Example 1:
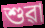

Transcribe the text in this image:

শুৱা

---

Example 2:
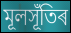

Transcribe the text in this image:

মূলসূঁতিৰ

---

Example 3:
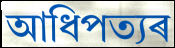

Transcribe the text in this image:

আধিপত্যৰ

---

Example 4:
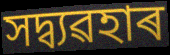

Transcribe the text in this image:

সদ্ব্যৱহাৰ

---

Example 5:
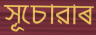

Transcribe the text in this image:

সূচোৱাৰ